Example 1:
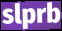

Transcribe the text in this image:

slprb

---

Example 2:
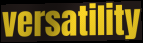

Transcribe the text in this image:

versatility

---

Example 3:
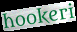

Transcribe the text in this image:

hookeri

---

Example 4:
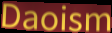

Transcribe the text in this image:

Daoism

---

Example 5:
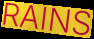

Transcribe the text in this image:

RAINS